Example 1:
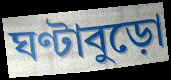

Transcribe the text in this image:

ঘণ্টাবুড়ো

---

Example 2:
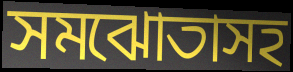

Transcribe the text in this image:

সমঝোতাসহ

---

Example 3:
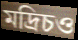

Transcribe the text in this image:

মদ্রিচও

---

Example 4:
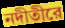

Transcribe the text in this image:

নদীতীরে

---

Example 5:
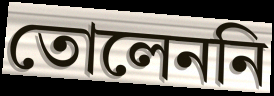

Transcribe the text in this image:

তোলেননি